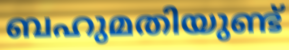
ബഹുമതിയുണ്ട്